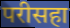
परीसहा